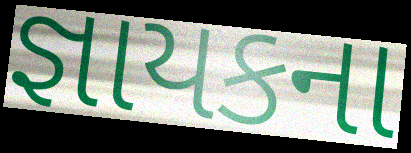
જ્ઞાયકના